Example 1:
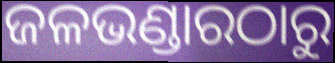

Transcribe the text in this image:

ଜଳଭଣ୍ଡାରଠାରୁ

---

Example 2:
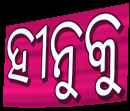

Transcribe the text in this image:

ହୀନୁକୁ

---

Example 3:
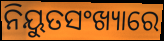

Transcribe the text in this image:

ନିୟୁତସଂଖ୍ୟାରେ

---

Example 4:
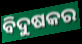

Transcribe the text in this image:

ବିଦୁଷକର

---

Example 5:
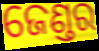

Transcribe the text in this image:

ଜେଣ୍ଡର